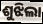
ଶୁଝିଲା